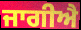
ਜਾਗੀਐ